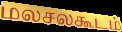
மலசலகூடம்